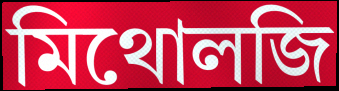
মিথোলজি